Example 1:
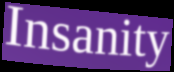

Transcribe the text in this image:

Insanity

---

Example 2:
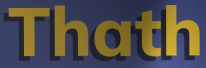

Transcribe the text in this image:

Thath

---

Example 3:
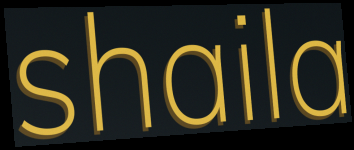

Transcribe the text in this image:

shaila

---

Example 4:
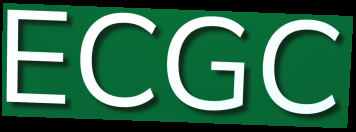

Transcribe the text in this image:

ECGC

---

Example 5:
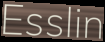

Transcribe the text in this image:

Esslin